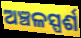
ଅଞ୍ଚଳସ୍ପର୍ଶ